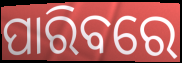
ପାରିବରେ